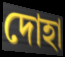
দোহা